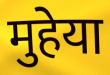
मुहेया